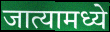
जात्यामध्ये